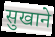
सुखाने